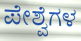
ಪೇಶ್ವೆಗಳ